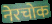
नेरचोक